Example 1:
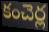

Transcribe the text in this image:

కంచెర్ల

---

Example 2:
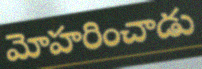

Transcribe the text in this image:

మోహరించాడు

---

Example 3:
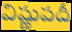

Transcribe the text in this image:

విష్ణుపదీ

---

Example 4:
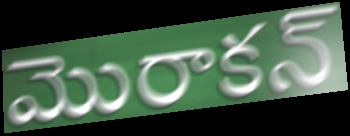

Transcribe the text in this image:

మొరాకన్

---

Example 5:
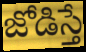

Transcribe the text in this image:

జోడిస్తే